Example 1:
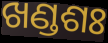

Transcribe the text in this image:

ଖଣ୍ଡଶଃ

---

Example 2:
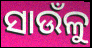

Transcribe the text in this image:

ସାଉଁଳୁ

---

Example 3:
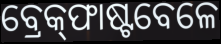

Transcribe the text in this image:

ବ୍ରେକ୍‌ଫାଷ୍ଟବେଳେ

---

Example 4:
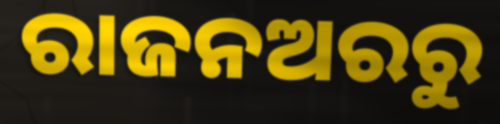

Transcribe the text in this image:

ରାଜନଅରରୁ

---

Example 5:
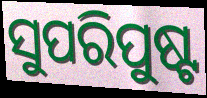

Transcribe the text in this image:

ସୁପରିପୁଷ୍ଟ